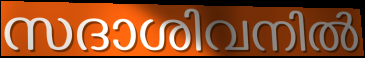
സദാശിവനിൽ